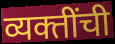
व्‍यक्‍तींची